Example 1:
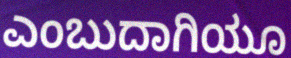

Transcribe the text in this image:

ಎಂಬುದಾಗಿಯೂ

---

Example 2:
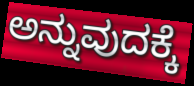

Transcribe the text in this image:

ಅನ್ನುವುದಕ್ಕೆ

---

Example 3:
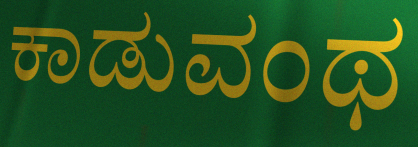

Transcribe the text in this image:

ಕಾಡುವಂಥ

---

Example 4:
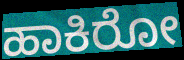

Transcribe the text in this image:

ಹಾಕಿರೋ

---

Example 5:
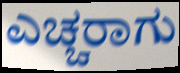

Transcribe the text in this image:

ಎಚ್ಚರಾಗು